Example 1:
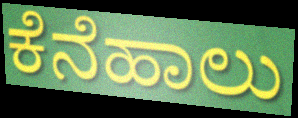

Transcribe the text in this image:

ಕೆನೆಹಾಲು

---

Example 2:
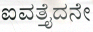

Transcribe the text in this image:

ಐವತ್ತೈದನೇ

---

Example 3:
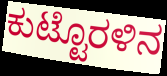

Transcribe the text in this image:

ಕುಟ್ಟೊರಳಿನ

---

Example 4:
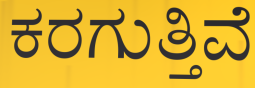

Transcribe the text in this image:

ಕರಗುತ್ತಿವೆ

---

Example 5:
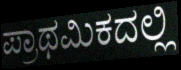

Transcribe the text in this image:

ಪ್ರಾಥಮಿಕದಲ್ಲಿ